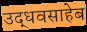
उद्धवसाहेब